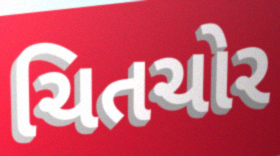
ચિતચોર